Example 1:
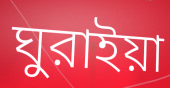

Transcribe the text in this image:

ঘুরাইয়া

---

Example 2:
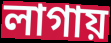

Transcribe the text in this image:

লাগায়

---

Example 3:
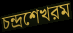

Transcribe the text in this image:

চন্দ্রশেখরম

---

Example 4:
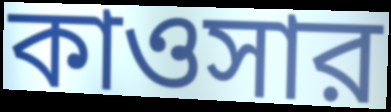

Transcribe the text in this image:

কাওসার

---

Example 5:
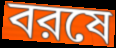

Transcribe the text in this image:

বরষে